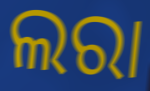
ଲରା